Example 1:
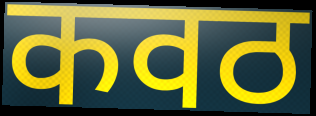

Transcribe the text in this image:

कवठ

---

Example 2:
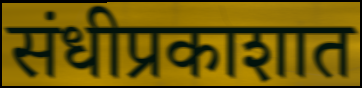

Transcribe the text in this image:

संधीप्रकाशात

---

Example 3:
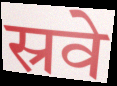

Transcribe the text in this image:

स्रवे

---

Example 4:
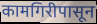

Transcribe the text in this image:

कामगिरीपासून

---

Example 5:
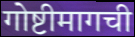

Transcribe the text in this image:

गोष्टीमागची